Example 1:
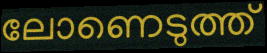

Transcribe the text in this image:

ലോണെടുത്ത്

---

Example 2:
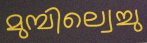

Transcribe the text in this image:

മുമ്പില്വെച്ചു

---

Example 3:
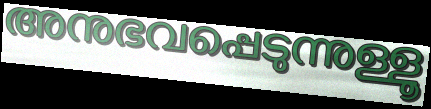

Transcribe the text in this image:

അനുഭവപ്പെടുന്നുള്ളൂ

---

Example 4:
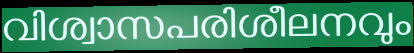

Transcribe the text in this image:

വിശ്വാസപരിശീലനവും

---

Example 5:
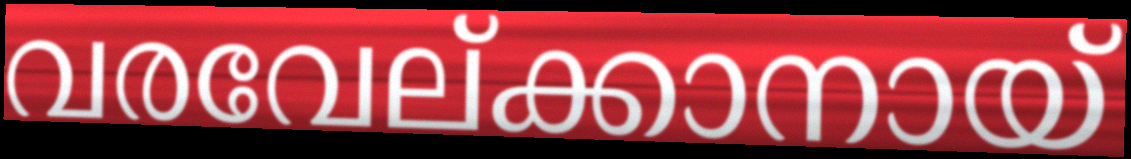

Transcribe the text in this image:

വരവേല്ക്കാനായ്